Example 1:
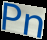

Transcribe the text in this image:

Pn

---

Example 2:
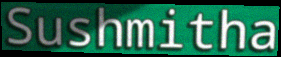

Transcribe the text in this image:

Sushmitha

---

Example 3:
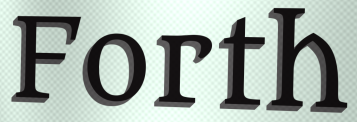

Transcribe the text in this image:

Forth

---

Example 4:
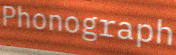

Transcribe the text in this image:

Phonograph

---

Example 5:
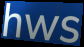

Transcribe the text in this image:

hws